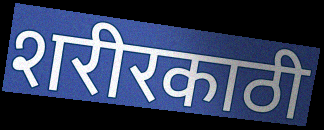
शरीरकाठी